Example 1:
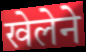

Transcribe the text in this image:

खेलेने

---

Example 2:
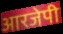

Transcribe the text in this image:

आरजेपी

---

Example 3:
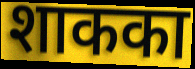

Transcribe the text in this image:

शाकका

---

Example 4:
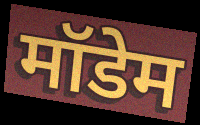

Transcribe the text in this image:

मॉडेम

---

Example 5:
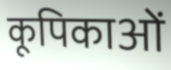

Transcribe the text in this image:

कूपिकाओं